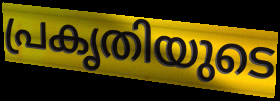
പ്രകൃതിയുടെ